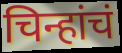
चिन्हांचं